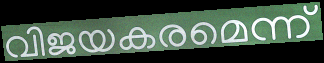
വിജയകരമെന്ന്